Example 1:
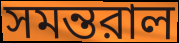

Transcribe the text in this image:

সমন্তরাল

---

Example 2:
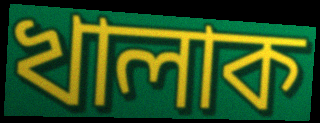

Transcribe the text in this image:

খালাক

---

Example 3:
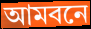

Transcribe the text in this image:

আমবনে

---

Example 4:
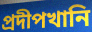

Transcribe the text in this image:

প্রদীপখানি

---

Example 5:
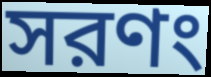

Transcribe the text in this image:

সরণং